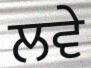
ਲਵੇ